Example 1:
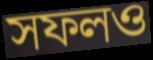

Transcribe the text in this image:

সফলও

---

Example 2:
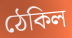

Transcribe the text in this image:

ঠেকিল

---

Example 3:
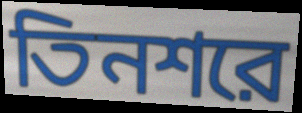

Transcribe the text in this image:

তিনশরে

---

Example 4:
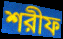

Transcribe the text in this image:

শরীফ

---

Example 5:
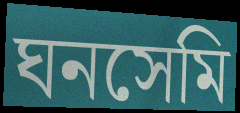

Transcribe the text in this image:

ঘনসেমি